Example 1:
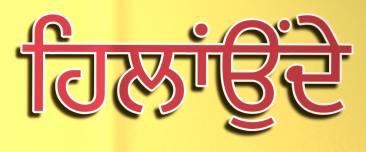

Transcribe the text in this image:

ਹਿਲਾਂਉਂਦੇ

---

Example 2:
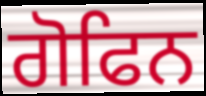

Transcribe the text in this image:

ਗੋਫਿਨ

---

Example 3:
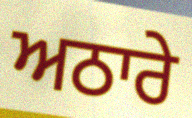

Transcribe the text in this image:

ਅਠਾਰੇ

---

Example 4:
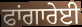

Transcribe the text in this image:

ਫਾਂਗਾਰੇਈ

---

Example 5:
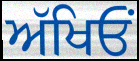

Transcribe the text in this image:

ਅੱਖਿਓਂ